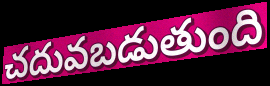
చదువబడుతుంది